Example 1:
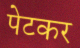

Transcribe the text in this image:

पेटकर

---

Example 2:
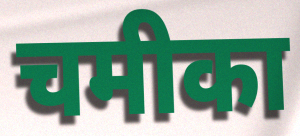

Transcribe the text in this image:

चमीका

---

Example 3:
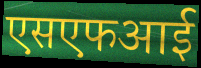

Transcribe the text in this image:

एसएफआई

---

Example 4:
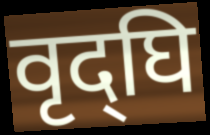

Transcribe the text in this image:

वृद्घि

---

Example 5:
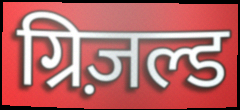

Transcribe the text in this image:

ग्रिज़ल्ड